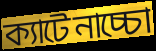
ক্যাটেনাচ্চো